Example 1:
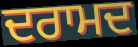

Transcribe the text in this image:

ਦਰਾਮਦ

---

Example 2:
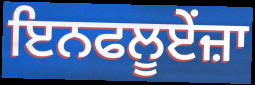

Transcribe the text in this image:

ਇਨਫਲੂਏਂਜ਼ਾ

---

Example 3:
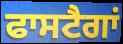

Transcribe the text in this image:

ਫਾਸਟੈਗਾਂ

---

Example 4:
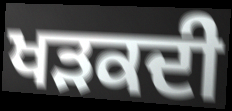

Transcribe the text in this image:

ਖੜਕਦੀ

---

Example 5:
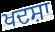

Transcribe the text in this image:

ਖਦਸ਼ਾ